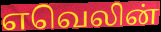
எவெலின்